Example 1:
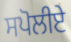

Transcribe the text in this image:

ਸਪੋਲੀਏ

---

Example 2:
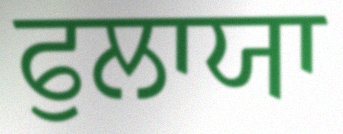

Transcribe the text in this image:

ਫੁਲਾਯਾ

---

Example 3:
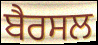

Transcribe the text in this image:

ਬੈਰਸਲ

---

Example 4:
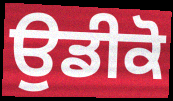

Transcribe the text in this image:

ਉਡੀਕੋ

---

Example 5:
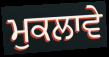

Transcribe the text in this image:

ਮੁਕਲਾਵੇ